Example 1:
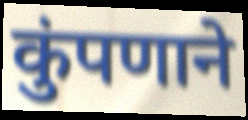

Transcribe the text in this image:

कुंपणाने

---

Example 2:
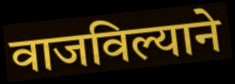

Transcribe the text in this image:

वाजविल्याने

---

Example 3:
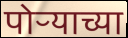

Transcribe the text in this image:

पोऱ्याच्या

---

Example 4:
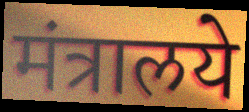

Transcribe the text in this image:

मंत्रालये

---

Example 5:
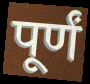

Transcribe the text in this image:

पूर्णं